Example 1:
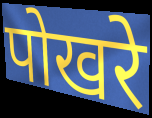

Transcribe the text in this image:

पोखरे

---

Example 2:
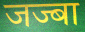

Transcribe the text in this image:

जज्बा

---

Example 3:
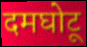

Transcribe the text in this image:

दमघोटू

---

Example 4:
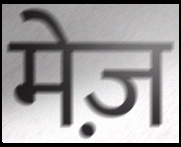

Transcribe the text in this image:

मेज़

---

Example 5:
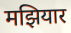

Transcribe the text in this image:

मझियार